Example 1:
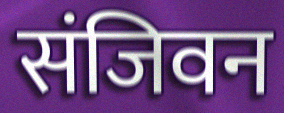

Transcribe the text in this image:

संजिवन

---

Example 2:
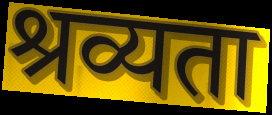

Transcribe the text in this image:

श्रव्यता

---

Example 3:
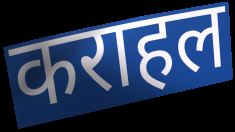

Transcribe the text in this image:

कराहल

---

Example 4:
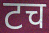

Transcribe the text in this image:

टच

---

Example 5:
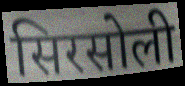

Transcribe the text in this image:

सिरसोली